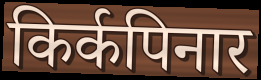
किर्कपिनार